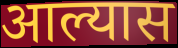
आल्यास